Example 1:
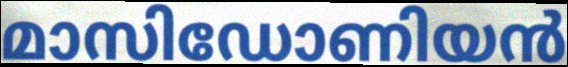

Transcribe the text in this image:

മാസിഡോണിയൻ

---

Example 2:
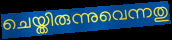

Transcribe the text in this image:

ചെയ്തിരുന്നുവെന്നതു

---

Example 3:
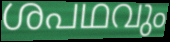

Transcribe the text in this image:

ശപഥവും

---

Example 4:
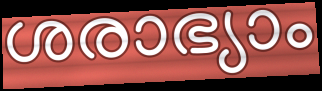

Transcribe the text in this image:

ശരാഭ്യാം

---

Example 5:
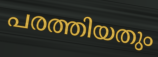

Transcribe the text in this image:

പരത്തിയതും